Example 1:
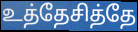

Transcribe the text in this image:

உத்தேசித்தே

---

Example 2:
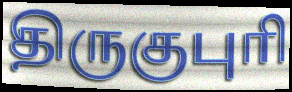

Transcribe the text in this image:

திருகுபுரி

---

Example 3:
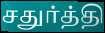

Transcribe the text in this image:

சதுர்த்தி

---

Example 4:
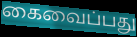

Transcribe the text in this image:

கைவைப்பது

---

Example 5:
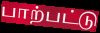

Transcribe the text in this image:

பாற்பட்டு